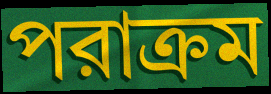
পরাক্রম